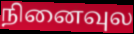
நினைவுல